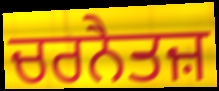
ਚਰਨੈਤਜ਼